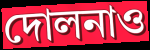
দোলনাও